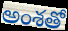
అంశతో